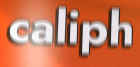
caliph